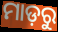
ମାଡ଼ରୁ